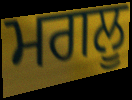
ਮਗਲੂ